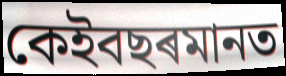
কেইবছৰমানত